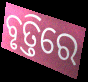
ବୃତ୍ତିରେ